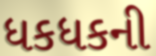
ધકધકની